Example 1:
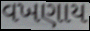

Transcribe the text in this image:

વખણાય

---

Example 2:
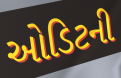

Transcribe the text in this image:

ઓડિટની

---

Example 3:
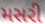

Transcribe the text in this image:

મસરી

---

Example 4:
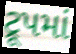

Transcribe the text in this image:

ટ્રૂપમાં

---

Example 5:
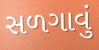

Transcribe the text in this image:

સળગાવું